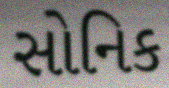
સોનિક